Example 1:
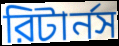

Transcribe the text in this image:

রিটার্নস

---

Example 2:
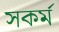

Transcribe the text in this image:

সকর্ম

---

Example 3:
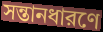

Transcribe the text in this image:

সন্তানধারণে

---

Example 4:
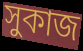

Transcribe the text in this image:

সুকাজ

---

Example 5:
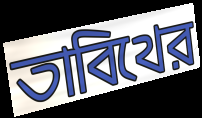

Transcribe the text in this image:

তাবিথের